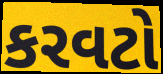
કરવટો